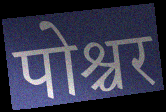
पोश्चर